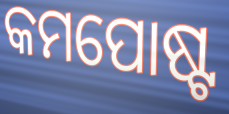
କମପୋଷ୍ଟ